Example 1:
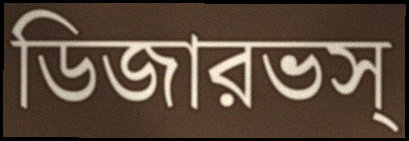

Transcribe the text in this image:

ডিজারভস্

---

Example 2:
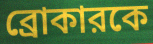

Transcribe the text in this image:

ব্রোকারকে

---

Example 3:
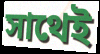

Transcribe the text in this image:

সাথেই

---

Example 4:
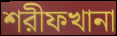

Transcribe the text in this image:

শরীফখানা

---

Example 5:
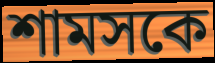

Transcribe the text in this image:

শামসকে